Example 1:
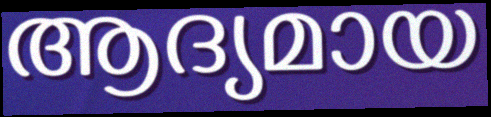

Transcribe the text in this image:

ആദ്യമായ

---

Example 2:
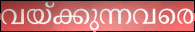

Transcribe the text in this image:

വയ്ക്കുന്നവരെ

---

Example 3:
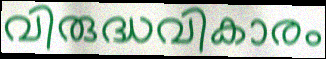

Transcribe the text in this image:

വിരുദ്ധവികാരം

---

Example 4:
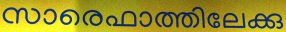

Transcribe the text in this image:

സാരെഫാത്തിലേക്കു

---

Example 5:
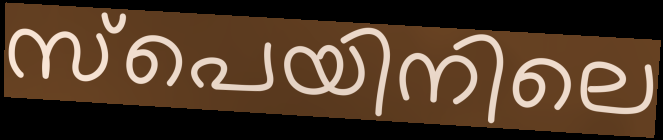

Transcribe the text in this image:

സ്പെയിനിലെ